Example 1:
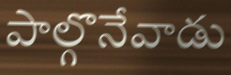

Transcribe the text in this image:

పాల్గొనేవాడు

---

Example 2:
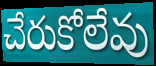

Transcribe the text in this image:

చేరుకోలేవు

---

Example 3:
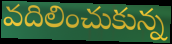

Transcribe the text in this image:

వదిలించుకున్న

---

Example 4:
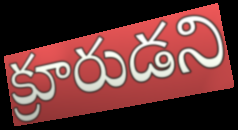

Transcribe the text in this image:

క్రూరుడని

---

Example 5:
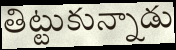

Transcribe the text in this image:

తిట్టుకున్నాడు